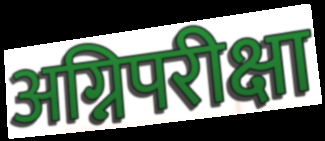
अग्निपरीक्षा